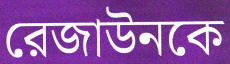
রেজাউনকে